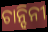
ଚାନ୍ଦିନୀ